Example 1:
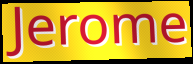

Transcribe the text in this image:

Jerome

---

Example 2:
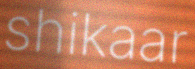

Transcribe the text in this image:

shikaar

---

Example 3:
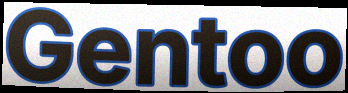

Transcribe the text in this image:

Gentoo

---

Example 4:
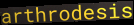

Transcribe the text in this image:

arthrodesis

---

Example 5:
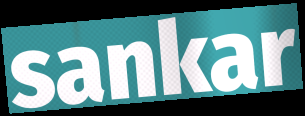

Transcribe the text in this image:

sankar